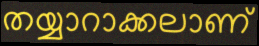
തയ്യാറാക്കലാണ്